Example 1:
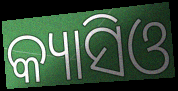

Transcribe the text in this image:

କ୍ୟାସିଓ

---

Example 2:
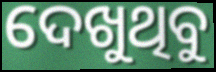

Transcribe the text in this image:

ଦେଖୁଥିବୁ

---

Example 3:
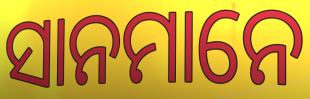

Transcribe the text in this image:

ସାନମାନେ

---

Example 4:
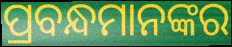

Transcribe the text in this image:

ପ୍ରବନ୍ଧମାନଙ୍କର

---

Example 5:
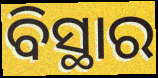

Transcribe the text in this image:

ବିସ୍ଥାର